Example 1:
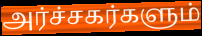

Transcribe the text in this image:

அர்ச்சகர்களும்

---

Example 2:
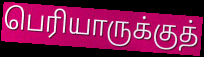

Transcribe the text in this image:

பெரியாருக்குத்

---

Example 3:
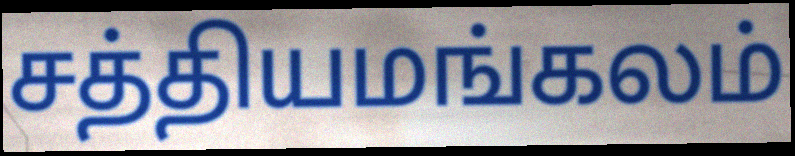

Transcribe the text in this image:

சத்தியமங்கலம்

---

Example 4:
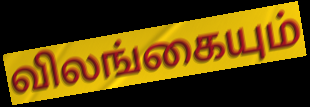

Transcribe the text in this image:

விலங்கையும்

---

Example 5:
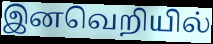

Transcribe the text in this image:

இனவெறியில்